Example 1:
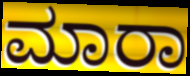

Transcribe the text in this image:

ಮಾರಾ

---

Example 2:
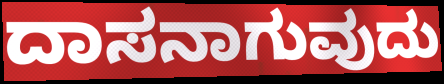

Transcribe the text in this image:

ದಾಸನಾಗುವುದು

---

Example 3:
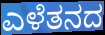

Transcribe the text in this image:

ಎಳೆತನದ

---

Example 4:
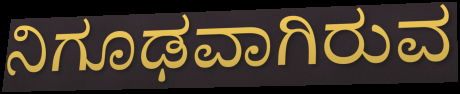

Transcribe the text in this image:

ನಿಗೂಢವಾಗಿರುವ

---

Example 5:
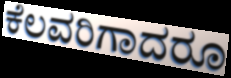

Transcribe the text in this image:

ಕೆಲವರಿಗಾದರೂ